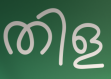
തിള